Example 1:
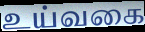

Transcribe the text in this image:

உய்வகை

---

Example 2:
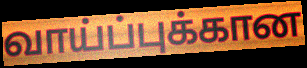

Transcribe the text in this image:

வாய்ப்புக்கான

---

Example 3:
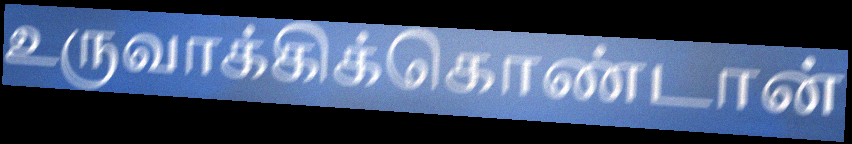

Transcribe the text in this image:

உருவாக்கிக்கொண்டான்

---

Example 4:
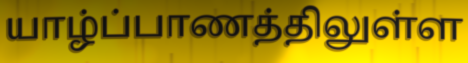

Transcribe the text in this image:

யாழ்ப்பாணத்திலுள்ள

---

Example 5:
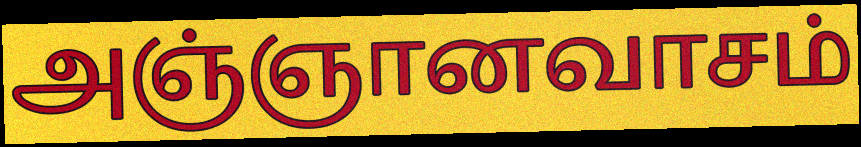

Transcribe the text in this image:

அஞ்ஞானவாசம்